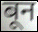
बून